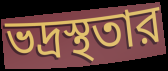
ভদ্রস্থতার